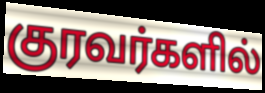
குரவர்களில்